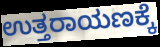
ಉತ್ತರಾಯಣಕ್ಕೆ